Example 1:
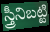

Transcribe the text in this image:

స్త్రీనిబట్టి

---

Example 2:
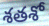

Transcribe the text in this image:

శతశో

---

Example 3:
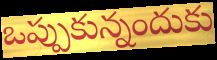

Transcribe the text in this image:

ఒప్పుకున్నందుకు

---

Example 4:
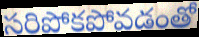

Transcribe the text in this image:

సరిపోకపోవడంతో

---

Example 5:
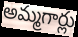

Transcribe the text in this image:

అమ్మగార్లు